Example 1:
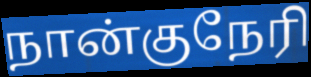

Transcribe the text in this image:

நான்குநேரி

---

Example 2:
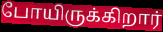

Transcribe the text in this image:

போயிருக்கிறார்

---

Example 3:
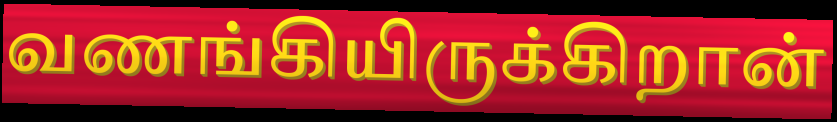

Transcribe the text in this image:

வணங்கியிருக்கிறான்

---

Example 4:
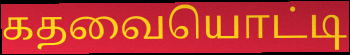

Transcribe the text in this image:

கதவையொட்டி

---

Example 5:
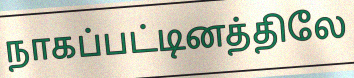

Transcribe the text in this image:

நாகப்பட்டினத்திலே